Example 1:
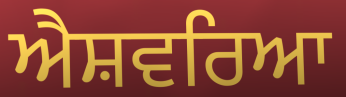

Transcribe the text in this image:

ਐਸ਼ਵਰਿਆ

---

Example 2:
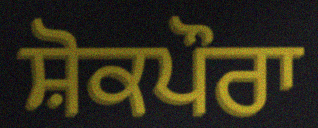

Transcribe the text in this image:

ਸ਼ੋਕਪੌਰਾ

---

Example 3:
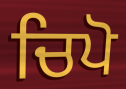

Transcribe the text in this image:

ਚਿਪੋ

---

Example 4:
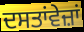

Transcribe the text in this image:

ਦਸਤਾਂਵੇਜ਼ਾਂ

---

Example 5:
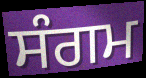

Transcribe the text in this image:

ਸੰਗਮ